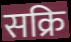
सक्रि